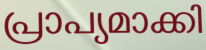
പ്രാപ്യമാക്കി